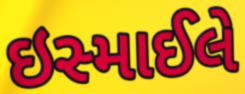
ઇસ્માઈલે